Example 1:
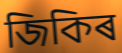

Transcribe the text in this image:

জিকিৰ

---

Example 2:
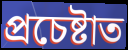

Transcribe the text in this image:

প্ৰচেষ্টাত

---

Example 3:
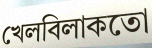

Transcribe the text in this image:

খেলবিলাকতো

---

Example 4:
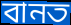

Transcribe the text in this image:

বানত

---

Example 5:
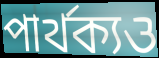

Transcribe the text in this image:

পাৰ্থক্যও